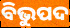
ବିଭୁପଦ